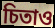
চিতাও